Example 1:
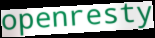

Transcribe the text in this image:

openresty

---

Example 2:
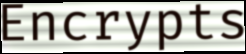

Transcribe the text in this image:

Encrypts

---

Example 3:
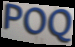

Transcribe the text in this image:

POQ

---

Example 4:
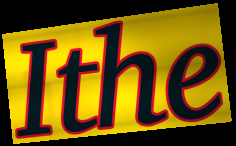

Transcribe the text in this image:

Ithe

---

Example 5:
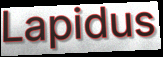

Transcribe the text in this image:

Lapidus